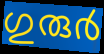
ഗുരുർ